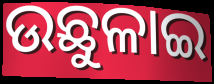
ଉଛୁଳାଇ